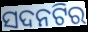
ସଦନଟିର